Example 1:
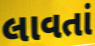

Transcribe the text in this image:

લાવતાં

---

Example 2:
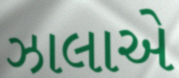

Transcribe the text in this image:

ઝાલાએ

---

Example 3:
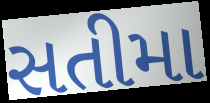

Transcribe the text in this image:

સતીમા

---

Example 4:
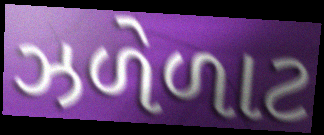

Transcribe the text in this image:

ઝળેળાટ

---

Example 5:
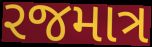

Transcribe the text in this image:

રજમાત્ર